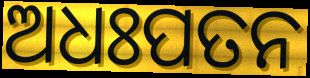
ଅଧଃପତନ